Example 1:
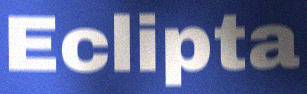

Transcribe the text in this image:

Eclipta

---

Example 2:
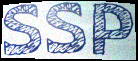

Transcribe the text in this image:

SSP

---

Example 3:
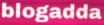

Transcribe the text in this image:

blogadda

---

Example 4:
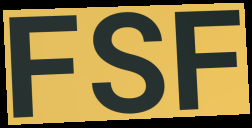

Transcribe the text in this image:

FSF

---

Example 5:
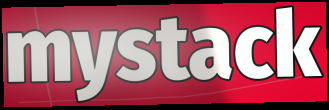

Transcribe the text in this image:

mystack